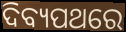
ଦିବ୍ୟପଥରେ